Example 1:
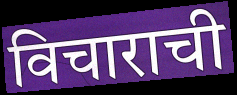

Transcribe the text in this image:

विचाराची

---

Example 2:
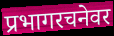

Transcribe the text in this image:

प्रभागरचनेवर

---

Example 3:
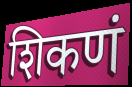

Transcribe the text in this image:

शिकणं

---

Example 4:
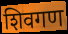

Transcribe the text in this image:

शिवगण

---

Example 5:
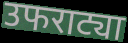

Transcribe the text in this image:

उफराट्या